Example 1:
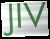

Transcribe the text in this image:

JIV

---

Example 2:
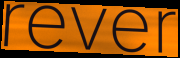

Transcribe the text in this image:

rever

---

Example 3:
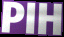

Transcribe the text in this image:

PIH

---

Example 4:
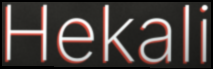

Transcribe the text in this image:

Hekali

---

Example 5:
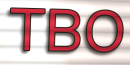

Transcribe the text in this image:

TBO